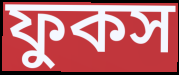
ফুকস